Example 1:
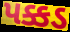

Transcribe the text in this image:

પક્કડ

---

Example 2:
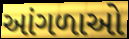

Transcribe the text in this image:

આંગળાઓ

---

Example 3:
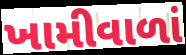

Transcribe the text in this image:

ખામીવાળાં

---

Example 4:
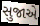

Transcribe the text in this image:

સુજાએ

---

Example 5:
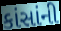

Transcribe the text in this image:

કાંસાંની